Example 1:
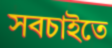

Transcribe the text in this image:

সবচাইতে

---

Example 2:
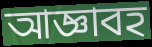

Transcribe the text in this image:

আজ্ঞাবহ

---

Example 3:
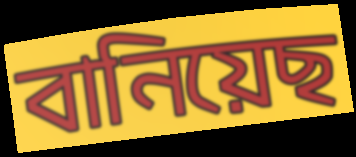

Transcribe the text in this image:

বানিয়েছ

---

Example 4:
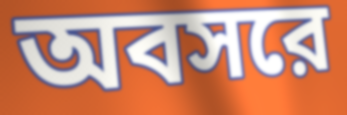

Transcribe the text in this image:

অবসরে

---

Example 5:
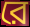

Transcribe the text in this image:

রে